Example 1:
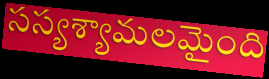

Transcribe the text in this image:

సస్యశ్యామలమైంది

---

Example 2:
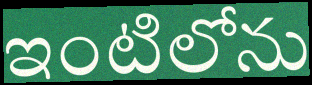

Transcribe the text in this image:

ఇంటిలోను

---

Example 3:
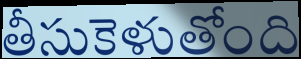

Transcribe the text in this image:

తీసుకెళుతోంది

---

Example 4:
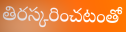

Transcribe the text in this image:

తిరస్కరించటంతో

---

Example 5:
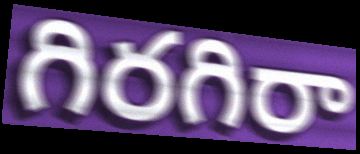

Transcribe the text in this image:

గిరగిరా